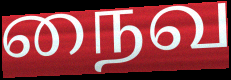
நைவ